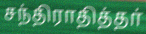
சந்திராதித்தர்